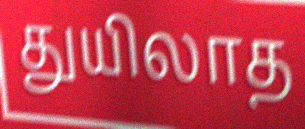
துயிலாத